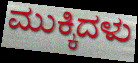
ಮುಕ್ಕಿದಳು